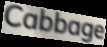
Cabbage